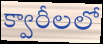
క్వారీలలో